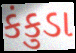
કંકુડા